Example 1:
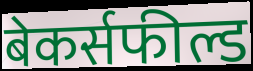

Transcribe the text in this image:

बेकर्सफील्ड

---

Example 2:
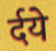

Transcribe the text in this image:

र्दये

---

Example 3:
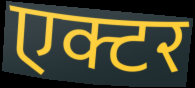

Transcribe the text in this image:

एक्टर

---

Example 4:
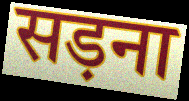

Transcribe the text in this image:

सड़ना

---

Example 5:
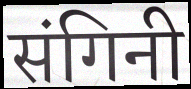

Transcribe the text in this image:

संगिनी